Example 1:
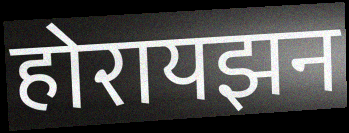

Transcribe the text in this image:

होरायझन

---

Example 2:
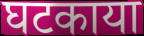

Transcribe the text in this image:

घटकाया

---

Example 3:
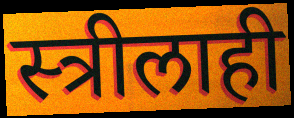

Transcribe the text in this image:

स्त्रीलाही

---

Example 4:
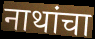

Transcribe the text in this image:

नाथांचा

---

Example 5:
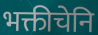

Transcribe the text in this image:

भक्तीचेनि